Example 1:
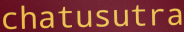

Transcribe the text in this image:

chatusutra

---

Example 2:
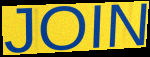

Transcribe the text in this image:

JOIN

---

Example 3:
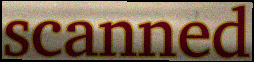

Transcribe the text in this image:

scanned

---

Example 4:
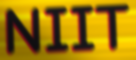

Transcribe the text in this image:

NIIT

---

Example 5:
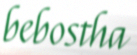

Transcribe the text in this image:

bebostha